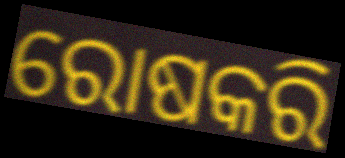
ରୋଷକରି